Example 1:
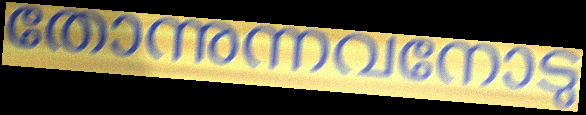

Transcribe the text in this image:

തോന്നുന്നവനോടു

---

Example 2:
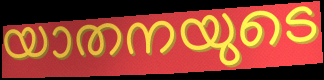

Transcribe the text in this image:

യാതനയുടെ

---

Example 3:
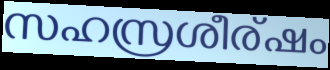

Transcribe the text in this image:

സഹസ്രശീര്ഷം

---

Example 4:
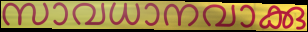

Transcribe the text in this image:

സാവധാനവാക്കു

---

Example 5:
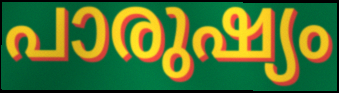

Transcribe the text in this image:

പാരുഷ്യം